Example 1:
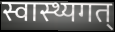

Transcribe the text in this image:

स्वास्थ्यगत्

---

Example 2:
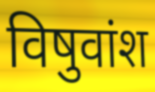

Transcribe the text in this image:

विषुवांश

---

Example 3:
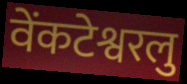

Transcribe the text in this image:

वेंकटेश्वरलु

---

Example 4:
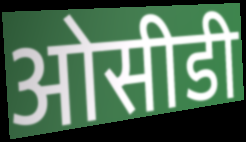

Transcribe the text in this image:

ओसीडी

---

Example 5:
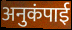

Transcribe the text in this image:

अनुकंपाई